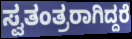
ಸ್ವತಂತ್ರರಾಗಿದ್ದರೆ